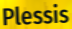
Plessis